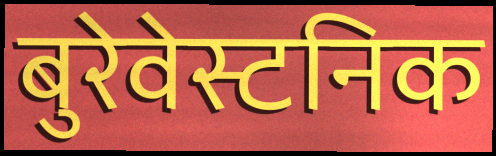
बुरेवेस्टनिक